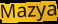
Mazya